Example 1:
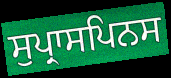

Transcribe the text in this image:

ਸੁਪ੍ਰਾਸਪਿਨਸ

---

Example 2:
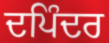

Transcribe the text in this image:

ਦਪਿੰਦਰ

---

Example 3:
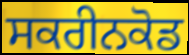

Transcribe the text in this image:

ਸਕਰੀਨਕੋਡ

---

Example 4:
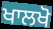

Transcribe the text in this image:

ਖਾਲਖੋ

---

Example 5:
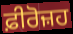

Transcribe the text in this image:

ਫ਼ੀਰੋਜ਼ਹ